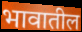
भावातील